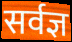
सर्वज्ञ